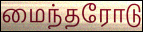
மைந்தரோடு